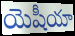
యెషీయా